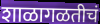
शाळागळतीचं